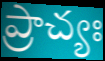
ప్రాచ్యః